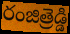
రంజిత్రెడ్డి